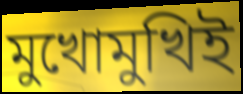
মুখোমুখিই